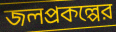
জলপ্রকল্পের